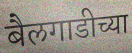
बैलगाडीच्या